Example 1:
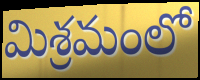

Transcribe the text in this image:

మిశ్రమంలో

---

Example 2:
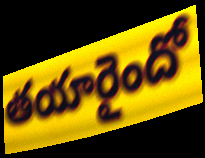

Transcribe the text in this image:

తయారైందో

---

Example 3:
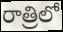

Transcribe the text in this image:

రాత్రిలో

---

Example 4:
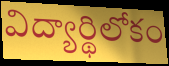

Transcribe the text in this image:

విద్యార్థిలోకం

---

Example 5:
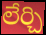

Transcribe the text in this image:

లేర్చి